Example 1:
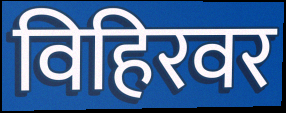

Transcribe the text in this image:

विहिरवर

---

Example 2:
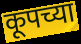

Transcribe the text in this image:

कूपच्या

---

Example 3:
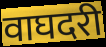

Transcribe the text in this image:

वाघदरी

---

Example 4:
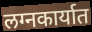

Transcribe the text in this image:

लग्नकार्यात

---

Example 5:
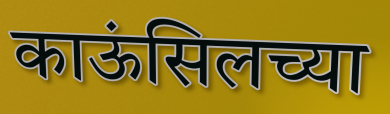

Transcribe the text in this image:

काऊंसिलच्या